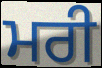
ਮਰੀ